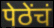
पेठेंचं